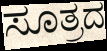
ಸೂತ್ರದ